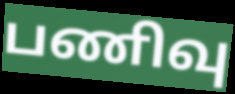
பணிவு